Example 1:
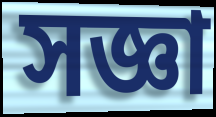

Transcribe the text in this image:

সজ্ঞা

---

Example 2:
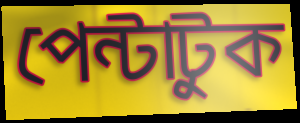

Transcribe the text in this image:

পেন্টাটুক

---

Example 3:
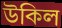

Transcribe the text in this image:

উকিল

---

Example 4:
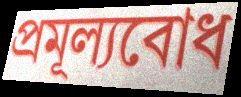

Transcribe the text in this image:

প্ৰমূল্যবোধ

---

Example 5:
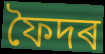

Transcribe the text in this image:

ফৈদৰ